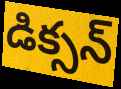
డిక్సన్